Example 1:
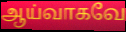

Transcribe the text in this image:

ஆய்வாகவே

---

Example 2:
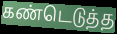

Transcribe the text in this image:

கண்டெடுத்த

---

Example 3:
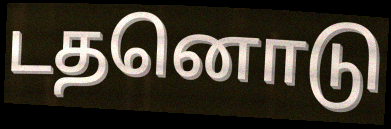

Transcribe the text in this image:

டதனொடு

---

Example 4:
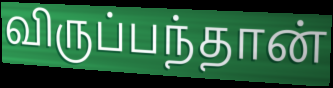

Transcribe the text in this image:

விருப்பந்தான்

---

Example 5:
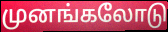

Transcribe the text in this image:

முனங்கலோடு